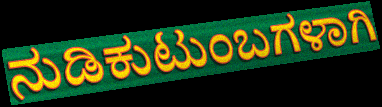
ನುಡಿಕುಟುಂಬಗಳಾಗಿ